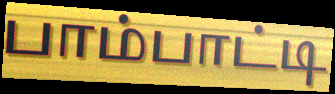
பாம்பாட்டி